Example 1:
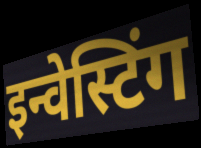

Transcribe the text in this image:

इन्वेस्टिंग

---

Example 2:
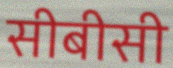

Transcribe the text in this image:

सीबीसी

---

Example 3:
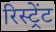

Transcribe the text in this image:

रिस्ट्रेंट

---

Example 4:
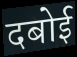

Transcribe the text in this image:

दबोई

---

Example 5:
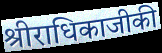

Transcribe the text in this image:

श्रीराधिकाजीकी